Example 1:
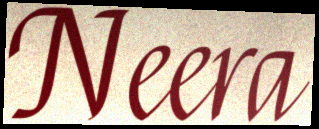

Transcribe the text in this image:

Neera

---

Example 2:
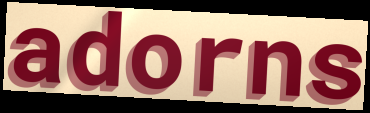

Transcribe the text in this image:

adorns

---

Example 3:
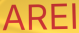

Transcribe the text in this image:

AREI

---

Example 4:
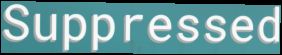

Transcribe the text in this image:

Suppressed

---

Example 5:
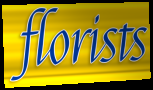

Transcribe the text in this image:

florists